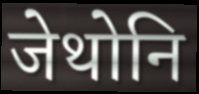
जेथोनि